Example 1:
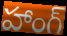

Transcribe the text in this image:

హాంగ్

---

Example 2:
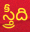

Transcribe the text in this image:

స్త్రీది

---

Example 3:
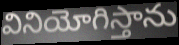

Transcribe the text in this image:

వినియోగిస్తాను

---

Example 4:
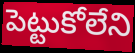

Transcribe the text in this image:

పెట్టుకోలేని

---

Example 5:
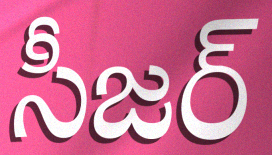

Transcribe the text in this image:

సీజర్